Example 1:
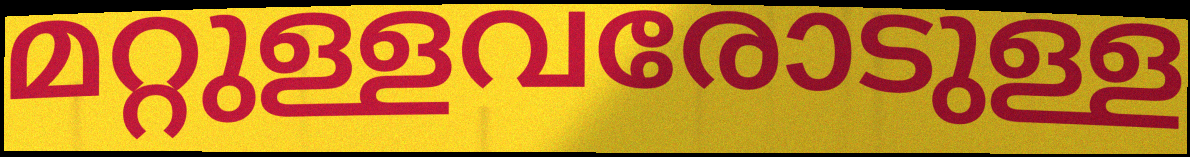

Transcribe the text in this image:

മറ്റുള്ളവരോടുള്ള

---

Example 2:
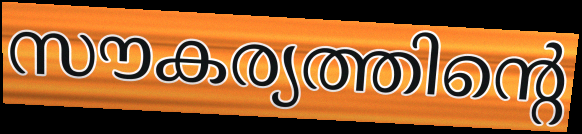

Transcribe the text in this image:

സൗകര്യത്തിന്റെ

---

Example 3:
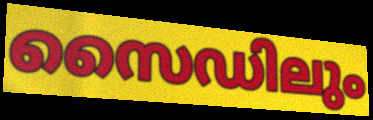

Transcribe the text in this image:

സൈഡിലും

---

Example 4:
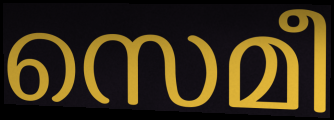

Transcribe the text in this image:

സെമീ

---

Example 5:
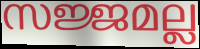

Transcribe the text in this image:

സജ്ജമല്ല